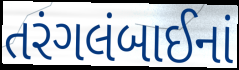
તરંગલંબાઈનાં